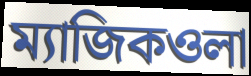
ম্যাজিকওলা